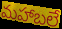
మహాబలే